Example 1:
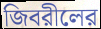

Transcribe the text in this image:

জিবরীলের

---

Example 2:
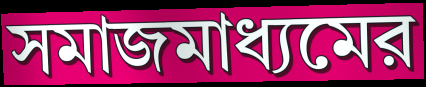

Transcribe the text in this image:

সমাজমাধ্যমের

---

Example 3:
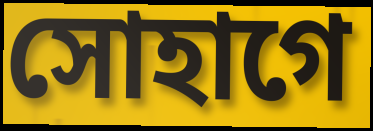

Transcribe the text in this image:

সোহাগে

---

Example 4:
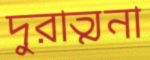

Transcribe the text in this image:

দুরাত্মনা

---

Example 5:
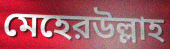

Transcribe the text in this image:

মেহেরউল্লাহ